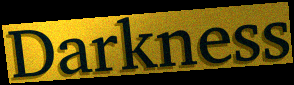
Darkness